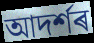
আদৰ্শৰ